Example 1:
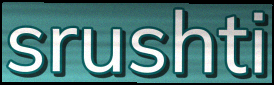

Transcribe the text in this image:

srushti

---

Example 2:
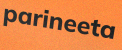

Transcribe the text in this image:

parineeta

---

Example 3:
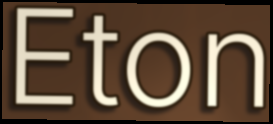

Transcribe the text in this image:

Eton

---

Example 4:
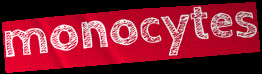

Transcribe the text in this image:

monocytes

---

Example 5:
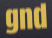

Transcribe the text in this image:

gnd